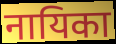
नायिका